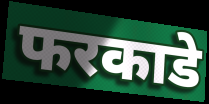
फरकाडे